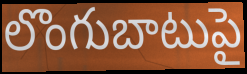
లొంగుబాటుపై